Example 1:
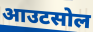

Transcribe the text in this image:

आउटसोल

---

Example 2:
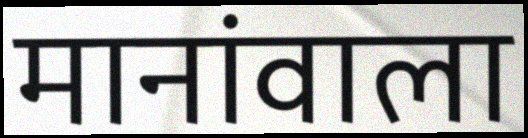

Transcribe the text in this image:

मानांवाला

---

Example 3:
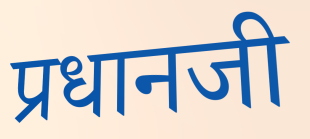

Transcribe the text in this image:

प्रधानजी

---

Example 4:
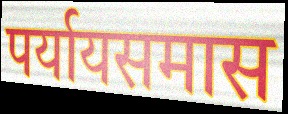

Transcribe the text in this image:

पर्यायसमास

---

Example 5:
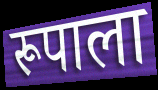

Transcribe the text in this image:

रूपाला